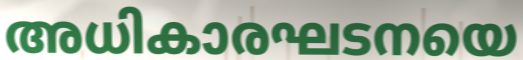
അധികാരഘടനയെ